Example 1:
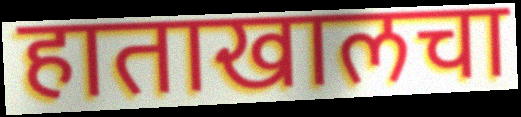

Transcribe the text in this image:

हाताखालचा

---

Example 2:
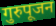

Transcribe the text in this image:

गुरुपूजन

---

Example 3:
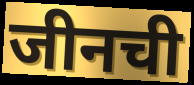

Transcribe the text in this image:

जीनची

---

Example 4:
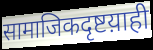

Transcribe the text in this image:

सामाजिकदृष्टय़ाही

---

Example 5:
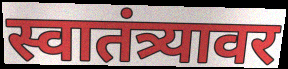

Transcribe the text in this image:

स्वातंत्र्यावर